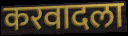
करवादला